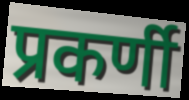
प्रकर्णी